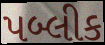
પબ્લીક